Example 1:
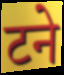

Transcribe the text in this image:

टने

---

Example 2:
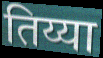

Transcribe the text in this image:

तिय्या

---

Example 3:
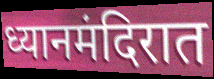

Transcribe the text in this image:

ध्यानमंदिरात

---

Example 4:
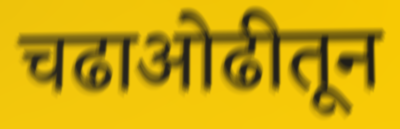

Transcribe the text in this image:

चढाओढीतून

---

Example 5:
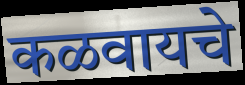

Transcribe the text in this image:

कळवायचे